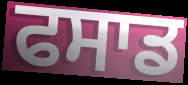
ਫਸਾਡ